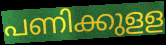
പണിക്കുളള